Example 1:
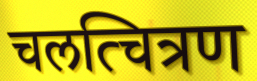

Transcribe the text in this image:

चलत्चित्रण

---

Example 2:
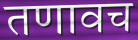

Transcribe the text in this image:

तणावच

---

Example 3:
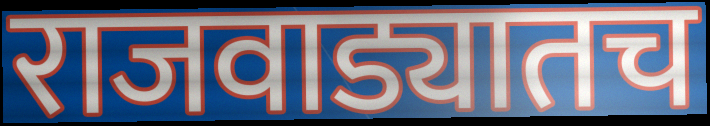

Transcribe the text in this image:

राजवाड्यातच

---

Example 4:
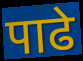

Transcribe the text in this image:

पाढे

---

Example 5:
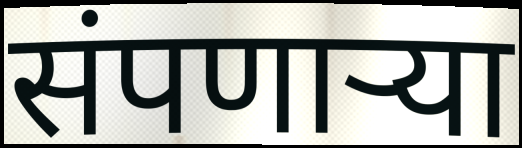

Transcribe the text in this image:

संपणाऱ्या